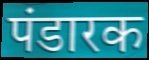
पंडारक